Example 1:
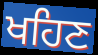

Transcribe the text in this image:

ਖਹਿਣ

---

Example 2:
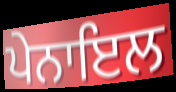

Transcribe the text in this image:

ਪੇਨਾਇਲ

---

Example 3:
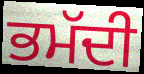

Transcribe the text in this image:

ਭਮੱਦੀ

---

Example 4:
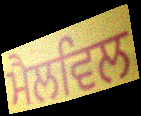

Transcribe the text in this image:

ਮੈਲਵਿਲ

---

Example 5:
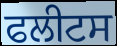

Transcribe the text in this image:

ਫਲੀਟਸ